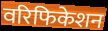
वरिफिकेशन